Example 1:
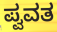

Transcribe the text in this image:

ಪ್ವವತ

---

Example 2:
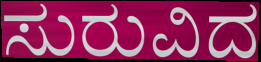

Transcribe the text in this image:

ಸುರುವಿದ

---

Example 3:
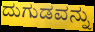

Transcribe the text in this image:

ದುಗುಡವನ್ನು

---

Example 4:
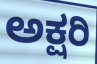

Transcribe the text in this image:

ಅಕ್ಷರಿ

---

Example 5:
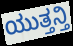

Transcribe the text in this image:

ಯುತ್ತನ್ತಿ